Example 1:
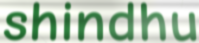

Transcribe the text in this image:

shindhu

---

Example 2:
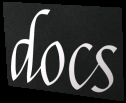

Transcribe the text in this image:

docs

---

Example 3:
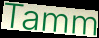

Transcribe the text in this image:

Tamm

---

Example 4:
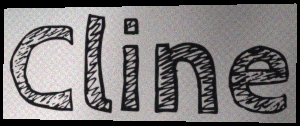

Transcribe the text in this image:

Cline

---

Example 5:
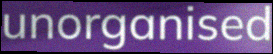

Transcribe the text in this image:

unorganised